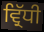
ਵ੍ਰਿੱਧੀ